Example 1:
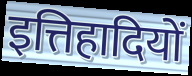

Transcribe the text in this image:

इत्तिहादियों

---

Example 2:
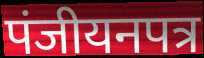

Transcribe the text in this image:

पंजीयनपत्र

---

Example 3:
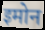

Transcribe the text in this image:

इमोन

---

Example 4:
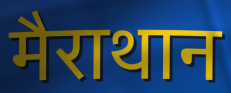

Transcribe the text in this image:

मैराथान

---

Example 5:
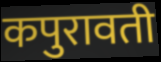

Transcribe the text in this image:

कपुरावती